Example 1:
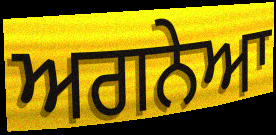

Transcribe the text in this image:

ਅਗਨੇਆ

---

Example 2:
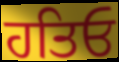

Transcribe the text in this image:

ਹਤਿਓ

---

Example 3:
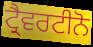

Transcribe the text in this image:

ਟ੍ਰੈਵਰਟੀਨੋ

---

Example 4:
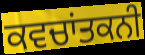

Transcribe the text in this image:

ਕਵਚਾਂਤਕਨੀ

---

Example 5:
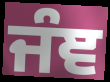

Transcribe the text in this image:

ਜੰਞ